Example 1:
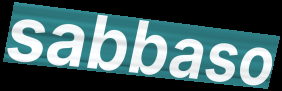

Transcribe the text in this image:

sabbaso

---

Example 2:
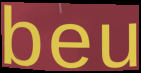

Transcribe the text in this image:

beu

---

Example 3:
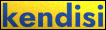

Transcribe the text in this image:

kendisi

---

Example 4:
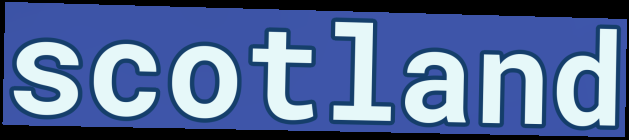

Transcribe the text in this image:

scotland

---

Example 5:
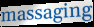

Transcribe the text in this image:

massaging